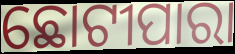
ଛୋଟୀପାରା